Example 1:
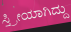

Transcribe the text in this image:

ಸ್ತ್ರೀಯಾಗಿದ್ದು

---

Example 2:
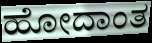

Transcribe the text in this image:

ಹೋದಾಂತ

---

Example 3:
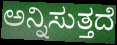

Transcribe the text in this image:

ಅನ್ನಿಸುತ್ತದೆ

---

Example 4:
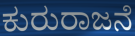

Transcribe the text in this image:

ಕುರುರಾಜನೆ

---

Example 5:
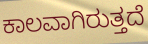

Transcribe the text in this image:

ಕಾಲವಾಗಿರುತ್ತದೆ